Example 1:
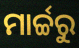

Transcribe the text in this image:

ମାର୍ଚ୍ଚରୁ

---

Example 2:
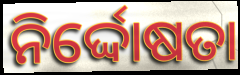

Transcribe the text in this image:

ନିର୍ଦ୍ଦୋଷତା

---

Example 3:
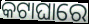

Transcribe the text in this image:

କଟାଘାରେ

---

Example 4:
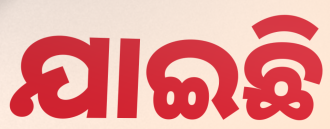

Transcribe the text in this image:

ଯାଇଛି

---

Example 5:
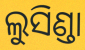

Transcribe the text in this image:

ଲୁସିଣ୍ଡା